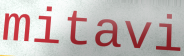
mitavi